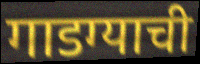
गाडग्याची